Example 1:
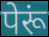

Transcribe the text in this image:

पेरूं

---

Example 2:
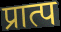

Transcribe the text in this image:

प्रात्प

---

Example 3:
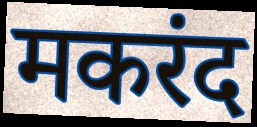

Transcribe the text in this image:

मकरंद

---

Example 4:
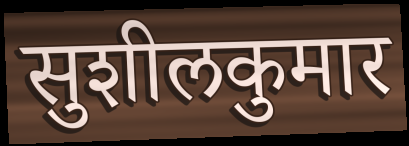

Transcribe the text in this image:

सुशीलकुमार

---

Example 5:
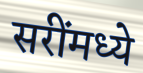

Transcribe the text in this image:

सरींमध्ये